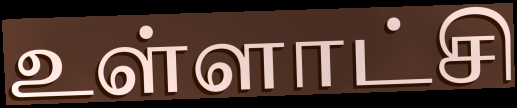
உள்ளாட்சி